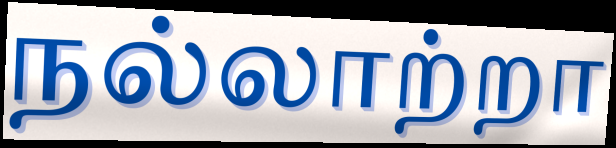
நல்லாற்றா